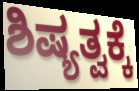
ಶಿಷ್ಯತ್ವಕ್ಕೆ